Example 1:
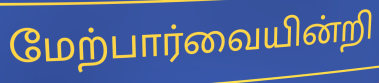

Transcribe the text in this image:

மேற்பார்வையின்றி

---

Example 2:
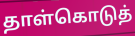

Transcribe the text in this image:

தாள்கொடுத்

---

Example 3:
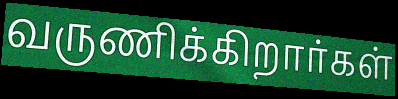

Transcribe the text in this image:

வருணிக்கிறார்கள்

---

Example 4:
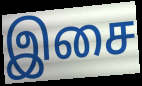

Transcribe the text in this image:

இசை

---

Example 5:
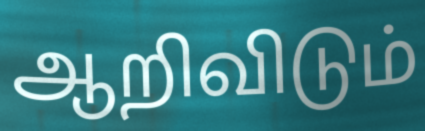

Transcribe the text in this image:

ஆறிவிடும்